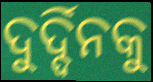
ଦୁର୍ଦ୍ଦିନକୁ